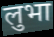
लुभा